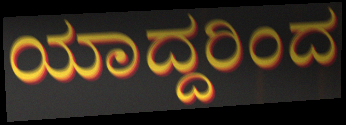
ಯಾದ್ದರಿಂದ